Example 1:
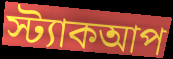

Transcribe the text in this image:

স্ট্যাকআপ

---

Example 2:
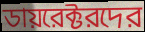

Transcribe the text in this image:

ডায়রেক্টরদের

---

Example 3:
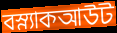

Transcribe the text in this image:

বস্ন্যাকআউট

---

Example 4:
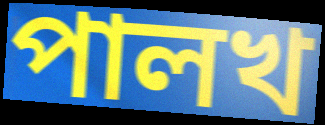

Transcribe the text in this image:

পালখ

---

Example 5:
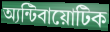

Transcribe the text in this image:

অ্যন্টিবায়োটিক